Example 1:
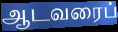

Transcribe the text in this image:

ஆடவரைப்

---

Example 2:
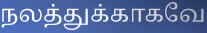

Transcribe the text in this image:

நலத்துக்காகவே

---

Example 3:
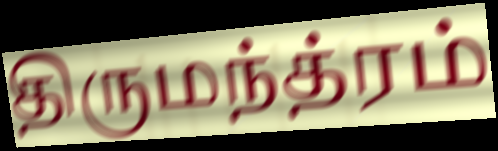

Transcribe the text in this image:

திருமந்த்ரம்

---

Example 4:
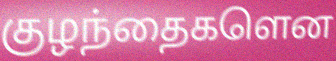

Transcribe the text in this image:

குழந்தைகளென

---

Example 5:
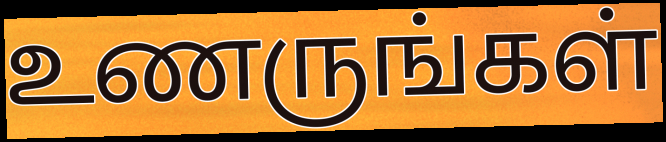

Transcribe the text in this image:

உணருங்கள்